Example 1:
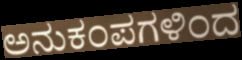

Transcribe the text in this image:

ಅನುಕಂಪಗಳಿಂದ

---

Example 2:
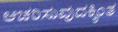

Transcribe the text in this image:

ಆಚರಿಸುವುದಕ್ಕಿಂತ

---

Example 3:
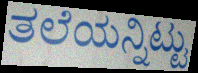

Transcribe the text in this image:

ತಲೆಯನ್ನಿಟ್ಟು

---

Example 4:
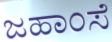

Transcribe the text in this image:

ಜಹಾಂಸೆ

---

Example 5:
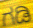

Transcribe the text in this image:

ಗಡಿ